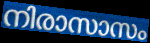
നിരാസാസം